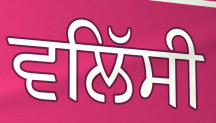
ਵਲਿੱਸੀ